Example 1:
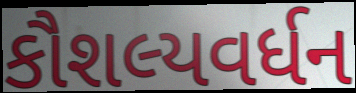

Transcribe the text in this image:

કૌશલ્યવર્ધન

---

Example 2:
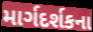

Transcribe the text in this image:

માર્ગદર્શકના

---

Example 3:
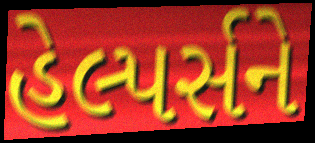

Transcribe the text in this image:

હેલ્પર્સને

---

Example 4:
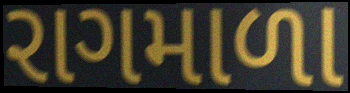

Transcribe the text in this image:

રાગમાળા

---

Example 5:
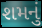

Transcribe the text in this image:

શમનું